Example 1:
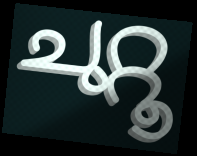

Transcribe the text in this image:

ചുറ്റൂ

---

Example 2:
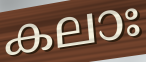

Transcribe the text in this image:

കലാഃ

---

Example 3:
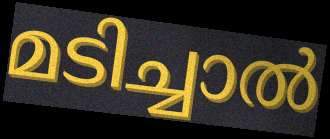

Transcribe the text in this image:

മടിച്ചാൽ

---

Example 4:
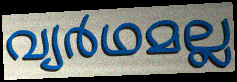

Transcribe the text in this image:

വ്യർഥമല്ല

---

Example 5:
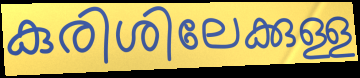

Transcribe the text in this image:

കുരിശിലേക്കുള്ള